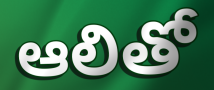
ఆలితో